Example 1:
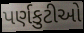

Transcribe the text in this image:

પર્ણકુટીઓ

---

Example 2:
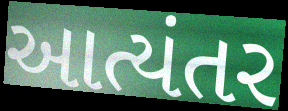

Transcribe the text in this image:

આત્યંતર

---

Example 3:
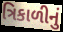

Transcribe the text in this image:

ત્રિકાળીનું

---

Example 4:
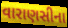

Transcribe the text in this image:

વારાણસીના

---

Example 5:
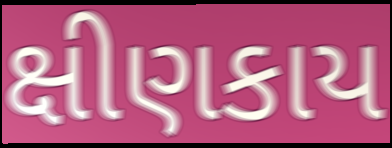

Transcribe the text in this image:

ક્ષીણકાય